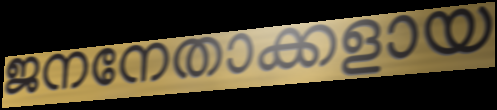
ജനനേതാക്കളായ